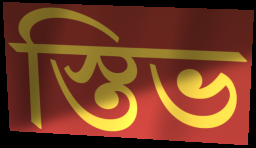
স্তিভ